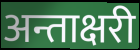
अन्ताक्षरी